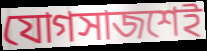
যোগসাজশেই